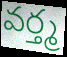
వర్త్మ